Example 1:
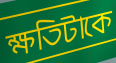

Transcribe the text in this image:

ক্ষতিটাকে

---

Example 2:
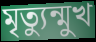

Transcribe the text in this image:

মৃত্যুন্মুখ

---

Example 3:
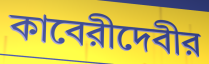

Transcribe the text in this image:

কাবেরীদেবীর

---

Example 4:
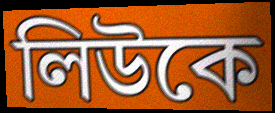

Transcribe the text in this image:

লিউকে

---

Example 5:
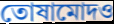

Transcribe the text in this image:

তোষামোদও